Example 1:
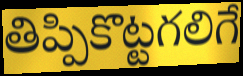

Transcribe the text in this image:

తిప్పికొట్టగలిగే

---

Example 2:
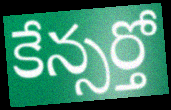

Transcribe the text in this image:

కేన్సర్తో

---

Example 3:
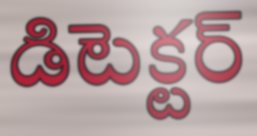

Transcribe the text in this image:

డిటెక్టర్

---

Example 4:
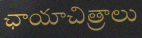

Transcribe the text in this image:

ఛాయాచిత్రాలు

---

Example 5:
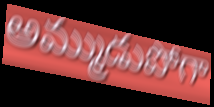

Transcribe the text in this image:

అమ్ముడుపోగా